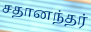
சதானந்தர்